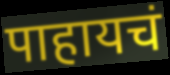
पाहायचं